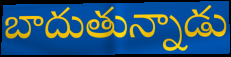
బాదుతున్నాడు